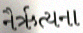
નૈર્ઋત્યના